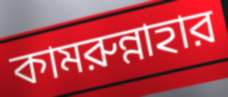
কামরুন্নাহার